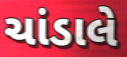
ચાંડાલે